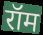
रॉम